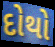
દોથો